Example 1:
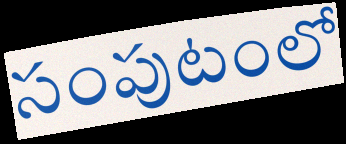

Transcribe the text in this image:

సంపుటంలో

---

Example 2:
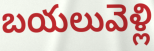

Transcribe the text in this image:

బయలువెళ్లి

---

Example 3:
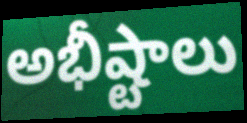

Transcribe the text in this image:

అభీష్టాలు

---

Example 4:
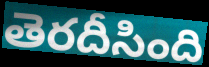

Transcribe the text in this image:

తెరదీసింది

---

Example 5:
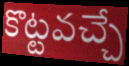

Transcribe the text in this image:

కొట్టవచ్చే